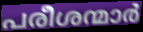
പരീശന്മാർ